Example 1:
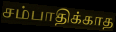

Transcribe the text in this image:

சம்பாதிக்காத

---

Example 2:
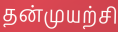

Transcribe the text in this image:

தன்முயற்சி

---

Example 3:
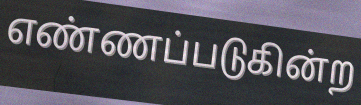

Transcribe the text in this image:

எண்ணப்படுகின்ற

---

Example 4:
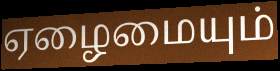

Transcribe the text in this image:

ஏழைமையும்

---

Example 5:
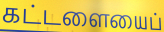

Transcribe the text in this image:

கட்டளையைப்